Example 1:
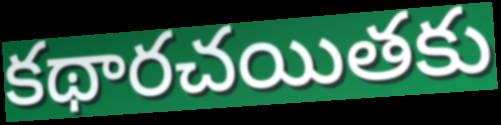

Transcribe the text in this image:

కథారచయితకు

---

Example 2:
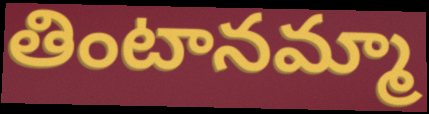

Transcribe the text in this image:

తింటానమ్మా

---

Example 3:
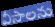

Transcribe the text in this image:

వీసాలను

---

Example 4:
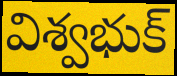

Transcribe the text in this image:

విశ్వభుక్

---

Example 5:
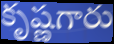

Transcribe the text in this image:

కృష్ణగారు